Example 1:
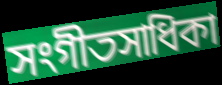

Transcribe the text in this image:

সংগীতসাধিকা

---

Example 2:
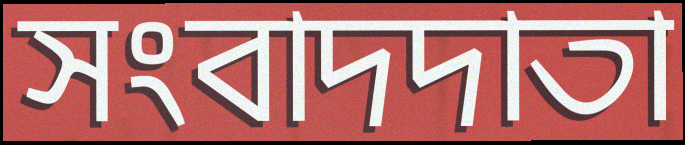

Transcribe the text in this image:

সংবাদদাতা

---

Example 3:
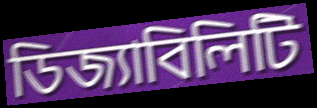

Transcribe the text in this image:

ডিজ্যাবিলিটি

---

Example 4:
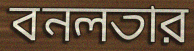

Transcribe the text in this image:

বনলতার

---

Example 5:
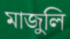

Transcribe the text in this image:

মাজুলি